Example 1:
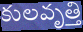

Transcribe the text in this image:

కులవృత్తి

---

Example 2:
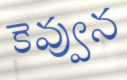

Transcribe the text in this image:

కెవ్వున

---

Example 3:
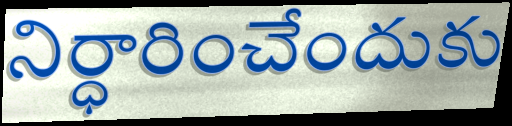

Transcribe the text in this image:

నిర్ధారించేందుకు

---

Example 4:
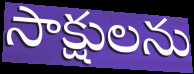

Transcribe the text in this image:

సాక్షులను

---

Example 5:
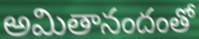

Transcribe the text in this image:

అమితానందంతో